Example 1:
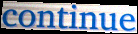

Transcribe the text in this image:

continue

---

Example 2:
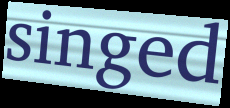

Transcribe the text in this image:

singed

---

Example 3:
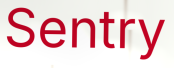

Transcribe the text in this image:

Sentry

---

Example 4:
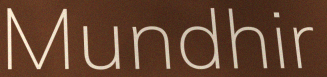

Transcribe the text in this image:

Mundhir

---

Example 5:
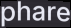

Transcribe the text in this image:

phare